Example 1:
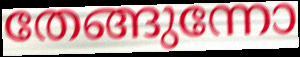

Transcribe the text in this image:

തേങ്ങുന്നോ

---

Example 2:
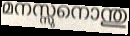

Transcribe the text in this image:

മനസ്സുനൊന്തു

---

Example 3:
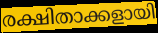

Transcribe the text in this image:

രക്ഷിതാക്കളായി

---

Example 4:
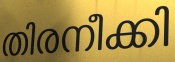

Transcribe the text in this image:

തിരനീക്കി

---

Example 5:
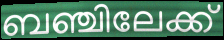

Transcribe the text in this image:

ബഞ്ചിലേക്ക്